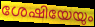
ശേഷിയേയും